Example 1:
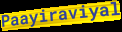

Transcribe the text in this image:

Paayiraviyal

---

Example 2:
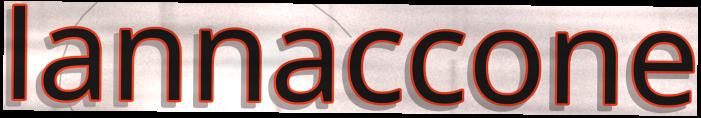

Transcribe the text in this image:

Iannaccone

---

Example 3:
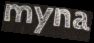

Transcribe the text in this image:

myna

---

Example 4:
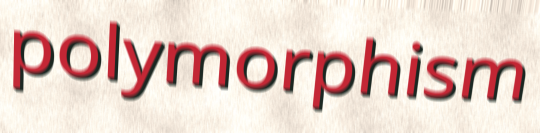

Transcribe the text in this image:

polymorphism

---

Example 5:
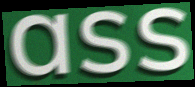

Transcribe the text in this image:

ass